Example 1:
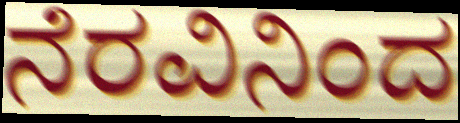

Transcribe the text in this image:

ನೆರವಿನಿಂದ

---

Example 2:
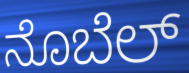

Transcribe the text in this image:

ನೊಬೆಲ್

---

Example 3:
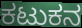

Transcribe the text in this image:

ಕಟುಕನ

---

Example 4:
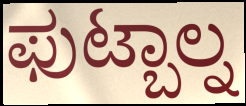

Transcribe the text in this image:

ಫುಟ್ಬಾಲ್ನ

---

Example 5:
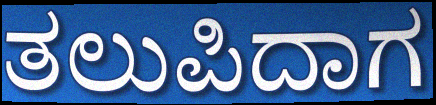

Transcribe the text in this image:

ತಲುಪಿದಾಗ